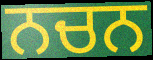
ਨਚਨ